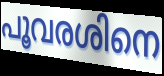
പൂവരശിനെ